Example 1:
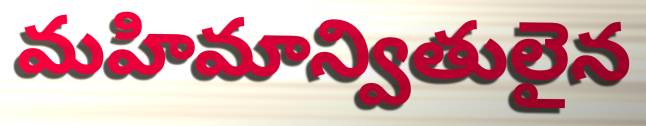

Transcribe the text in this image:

మహిమాన్వితులైన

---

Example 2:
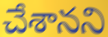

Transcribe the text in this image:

చేశానని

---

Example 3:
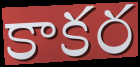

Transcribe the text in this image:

కాకర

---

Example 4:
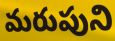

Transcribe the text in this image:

మరుపుని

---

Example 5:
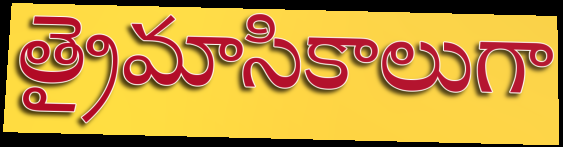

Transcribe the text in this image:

త్రైమాసికాలుగా